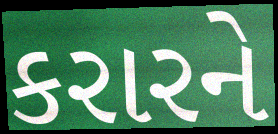
કરારને